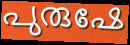
പുരുഷേ